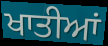
ਖਾਤੀਆਂ